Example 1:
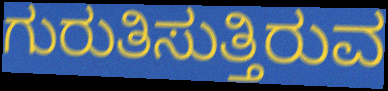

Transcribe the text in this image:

ಗುರುತಿಸುತ್ತಿರುವ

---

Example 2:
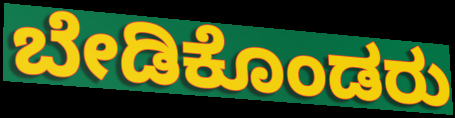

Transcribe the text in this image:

ಬೇಡಿಕೊಂಡರು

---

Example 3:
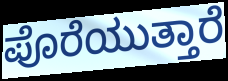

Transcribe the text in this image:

ಪೊರೆಯುತ್ತಾರೆ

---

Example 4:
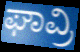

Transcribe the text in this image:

ಘಾವ್ರಿ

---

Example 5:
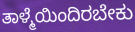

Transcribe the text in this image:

ತಾಳ್ಮೆಯಿಂದಿರಬೇಕು